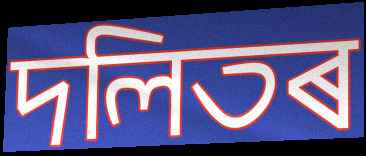
দলিতৰ